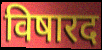
विषारद